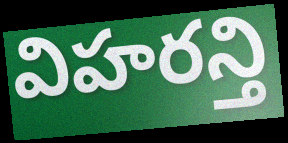
విహరన్తి